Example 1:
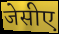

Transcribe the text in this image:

जेसीए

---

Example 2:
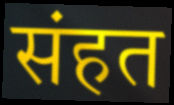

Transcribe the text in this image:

संहत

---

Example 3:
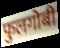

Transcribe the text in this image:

फुलगोबी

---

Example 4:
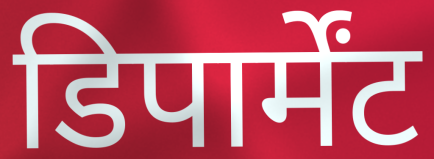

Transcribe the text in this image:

डिपार्मेंट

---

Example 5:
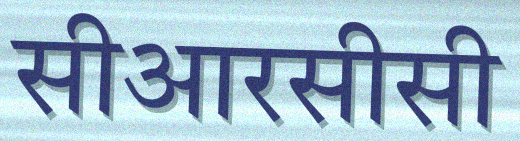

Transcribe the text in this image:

सीआरसीसी